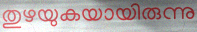
തുഴയുകയായിരുന്നു